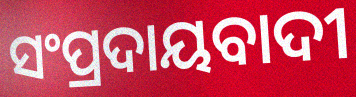
ସଂପ୍ରଦାୟବାଦୀ